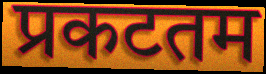
प्रकटतम